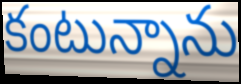
కంటున్నాను